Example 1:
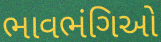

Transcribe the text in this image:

ભાવભંગિઓ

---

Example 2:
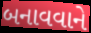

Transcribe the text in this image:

બનાવવાને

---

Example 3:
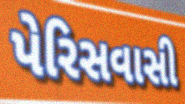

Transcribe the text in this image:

પેરિસવાસી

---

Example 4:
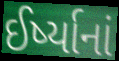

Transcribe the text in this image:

ઈર્ષ્યાનાં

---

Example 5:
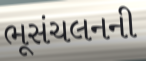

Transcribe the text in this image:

ભૂસંચલનની